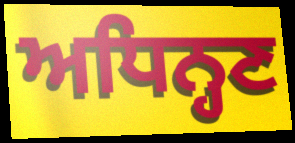
ਅਧਿਨ੍ਹਣ